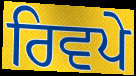
ਰਿਵਪੇ